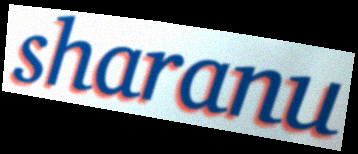
sharanu